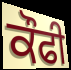
ਕੌਫੀ